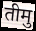
तीमु